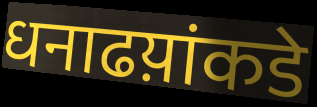
धनाढय़ांकडे